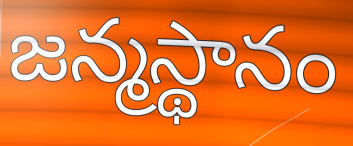
జన్మస్థానం